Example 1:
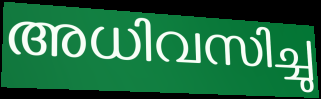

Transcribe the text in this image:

അധിവസിച്ചു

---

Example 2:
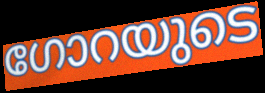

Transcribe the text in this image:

ഗോറയുടെ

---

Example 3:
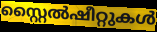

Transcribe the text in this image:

സ്റ്റൈൽഷീറ്റുകൾ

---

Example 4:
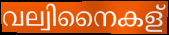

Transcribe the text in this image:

വല്വിനൈകള്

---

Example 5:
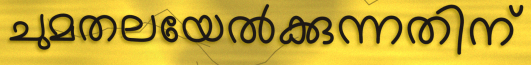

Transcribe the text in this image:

ചുമതലയേൽക്കുന്നതിന്